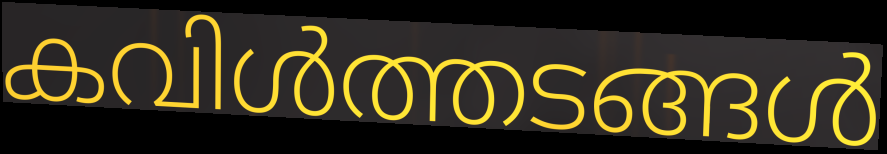
കവിൾത്തടങ്ങൾ